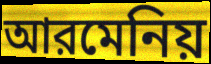
আরমেনিয়